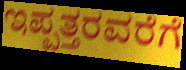
ಇಪ್ಪತ್ತರವರೆಗೆ